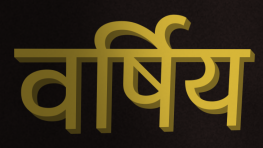
वर्षिय